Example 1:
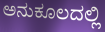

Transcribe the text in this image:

ಅನುಕೂಲದಲ್ಲಿ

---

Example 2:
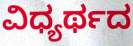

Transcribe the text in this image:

ವಿಧ್ಯರ್ಥದ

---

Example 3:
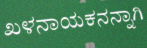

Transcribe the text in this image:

ಖಳನಾಯಕನನ್ನಾಗಿ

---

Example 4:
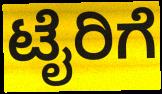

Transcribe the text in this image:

ಟೈರಿಗೆ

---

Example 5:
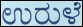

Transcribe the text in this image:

ಉರುಳೆ